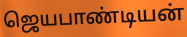
ஜெயபாண்டியன்